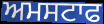
ਅਮਸਟਾਫ